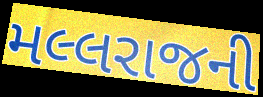
મલ્લરાજની